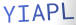
YIAPL